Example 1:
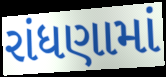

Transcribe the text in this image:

રાંધણામાં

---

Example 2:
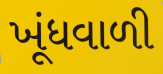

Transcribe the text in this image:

ખૂંધવાળી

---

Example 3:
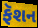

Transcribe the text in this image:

ફૅશન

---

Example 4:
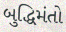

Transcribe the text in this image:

બુદ્ધિમંતો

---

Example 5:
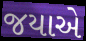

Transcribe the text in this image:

જયાએ